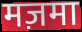
मज़मा